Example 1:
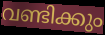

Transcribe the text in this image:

വണ്ടിക്കും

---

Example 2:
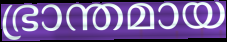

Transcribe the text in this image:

ഭ്രാന്തമായ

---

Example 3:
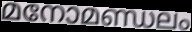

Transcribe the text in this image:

മനോമണ്ഡലം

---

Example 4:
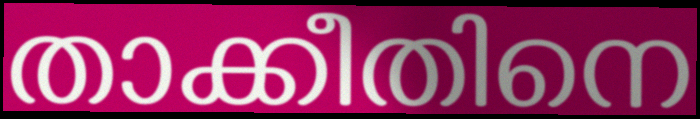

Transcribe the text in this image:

താക്കീതിനെ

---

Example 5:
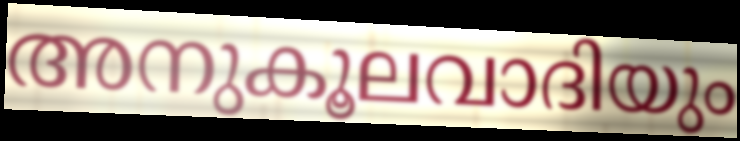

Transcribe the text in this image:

അനുകൂലവാദിയും